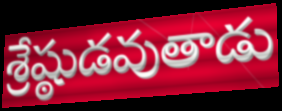
శ్రేష్ఠుడవుతాడు